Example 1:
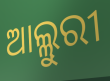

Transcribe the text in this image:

ଆଲ୍ଲୁରୀ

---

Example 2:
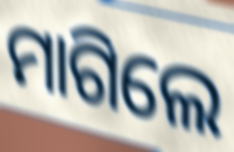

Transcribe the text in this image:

ମାଗିଲେ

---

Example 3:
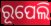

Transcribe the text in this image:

ରୂପେଲି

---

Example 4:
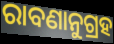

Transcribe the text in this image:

ରାବଣାନୁଗ୍ରହ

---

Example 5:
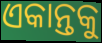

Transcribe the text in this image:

ଏକାନ୍ତକୁ